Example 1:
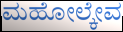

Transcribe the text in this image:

ಮಹೋಲ್ಕೇವ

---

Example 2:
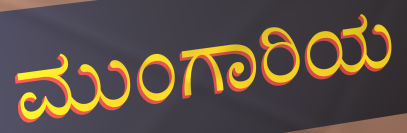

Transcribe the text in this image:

ಮುಂಗಾರಿಯ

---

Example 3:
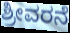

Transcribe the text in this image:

ಶ್ರೀವರನೆ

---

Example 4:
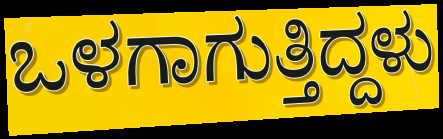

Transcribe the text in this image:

ಒಳಗಾಗುತ್ತಿದ್ದಳು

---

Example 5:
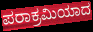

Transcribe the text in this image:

ಪರಾಕ್ರಮಿಯಾದ